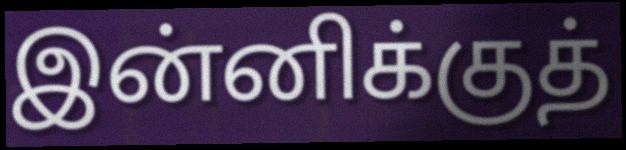
இன்னிக்குத்